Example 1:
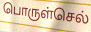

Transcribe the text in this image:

பொருள்செல்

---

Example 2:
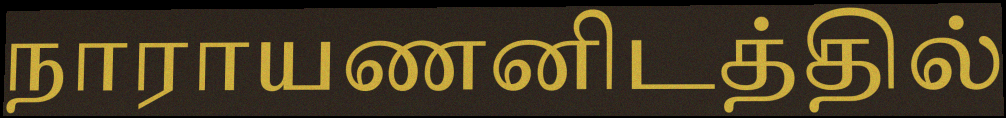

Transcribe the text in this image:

நாராயணனிடத்தில்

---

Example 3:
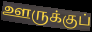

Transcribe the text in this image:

ஊருக்குப்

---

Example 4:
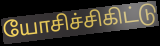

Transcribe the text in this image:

யோசிச்சிகிட்டு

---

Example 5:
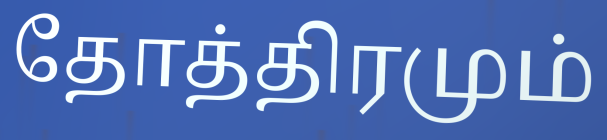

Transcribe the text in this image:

தோத்திரமும்